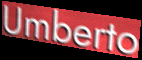
Umberto